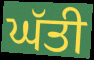
ਘੱਤੀ